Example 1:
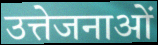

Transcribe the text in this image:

उत्तेजनाओं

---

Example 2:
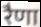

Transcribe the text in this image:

रैणा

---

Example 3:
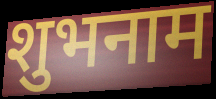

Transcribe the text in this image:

शुभनाम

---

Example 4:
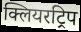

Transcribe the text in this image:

क्लियरट्रिप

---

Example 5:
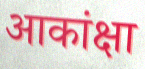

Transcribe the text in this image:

आकांक्षा